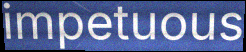
impetuous